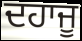
ਦਹਾਜੂ